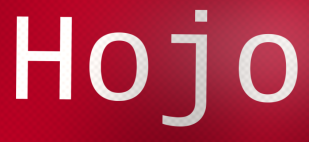
Hojo